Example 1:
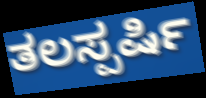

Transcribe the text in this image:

ತಲಸ್ಪರ್ಷಿ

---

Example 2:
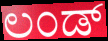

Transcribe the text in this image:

ಲಂಡ್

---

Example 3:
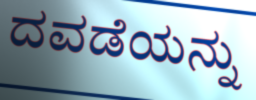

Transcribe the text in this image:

ದವಡೆಯನ್ನು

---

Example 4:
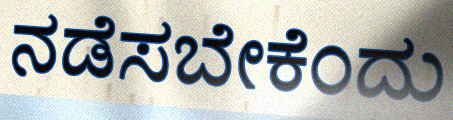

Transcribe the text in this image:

ನಡೆಸಬೇಕೆಂದು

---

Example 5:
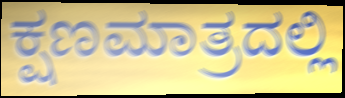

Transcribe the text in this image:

ಕ್ಷಣಮಾತ್ರದಲ್ಲಿ